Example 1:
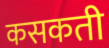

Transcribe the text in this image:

कसकती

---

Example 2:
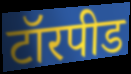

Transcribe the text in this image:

टॉरपीड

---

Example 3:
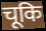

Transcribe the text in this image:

चूकि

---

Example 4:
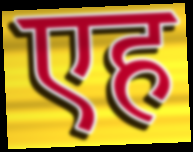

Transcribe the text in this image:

एह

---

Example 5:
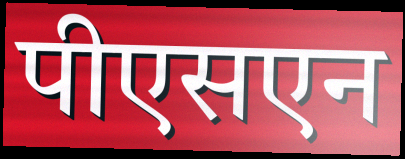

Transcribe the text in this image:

पीएसएन